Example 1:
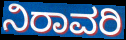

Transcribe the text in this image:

ನಿರಾವರಿ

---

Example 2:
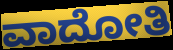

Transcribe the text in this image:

ವಾದೋತಿ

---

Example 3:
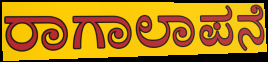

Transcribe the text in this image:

ರಾಗಾಲಾಪನೆ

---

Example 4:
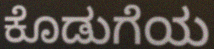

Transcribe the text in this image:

ಕೊಡುಗೆಯ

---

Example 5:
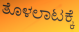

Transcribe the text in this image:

ತೊಳಲಾಟಕ್ಕೆ